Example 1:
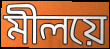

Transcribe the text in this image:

মীলয়ে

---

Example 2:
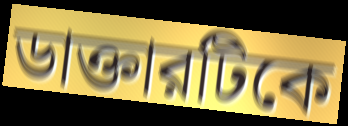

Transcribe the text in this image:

ডাক্তারটিকে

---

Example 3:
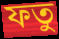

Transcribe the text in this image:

ফতু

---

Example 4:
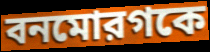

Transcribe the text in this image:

বনমোরগকে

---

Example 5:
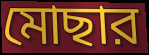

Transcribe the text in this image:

মোছার